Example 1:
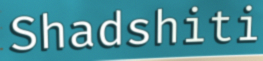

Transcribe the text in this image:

Shadshiti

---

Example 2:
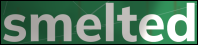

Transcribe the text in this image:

smelted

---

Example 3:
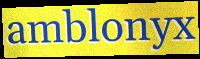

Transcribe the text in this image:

amblonyx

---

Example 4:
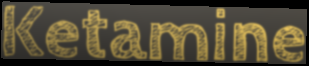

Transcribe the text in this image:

Ketamine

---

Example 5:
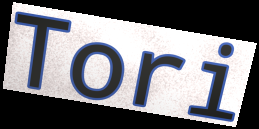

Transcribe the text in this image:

Tori